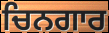
ਚਿਨਗਾਰ